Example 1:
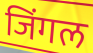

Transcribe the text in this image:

जिंगल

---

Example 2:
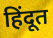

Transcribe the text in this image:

हिंदूत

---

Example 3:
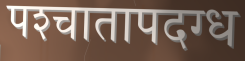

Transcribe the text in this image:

पश्चातापदग्ध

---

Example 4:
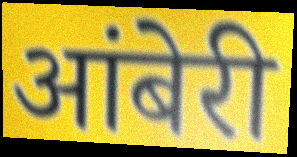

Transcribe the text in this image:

आंबेरी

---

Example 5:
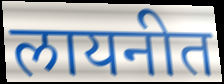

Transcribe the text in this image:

लायनीत